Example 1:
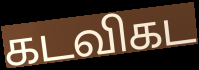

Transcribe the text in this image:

கடவிகட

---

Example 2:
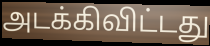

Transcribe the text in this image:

அடக்கிவிட்டது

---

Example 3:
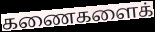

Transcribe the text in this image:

கணைகளைக்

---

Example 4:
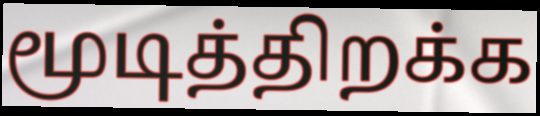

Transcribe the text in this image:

மூடித்திறக்க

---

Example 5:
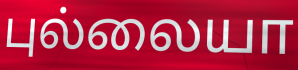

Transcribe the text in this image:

புல்லையா